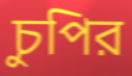
চুপির